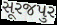
સૂરજપુર